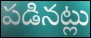
పడినట్లు